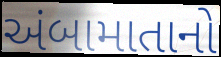
અંબામાતાનો